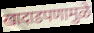
खादाडपणामुळे